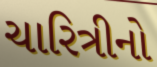
ચારિત્રીનો